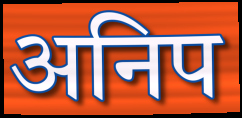
अनिप